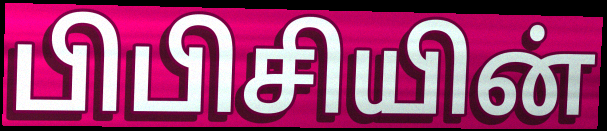
பிபிசியின்